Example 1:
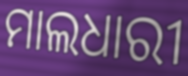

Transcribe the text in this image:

ମାଲଧାରୀ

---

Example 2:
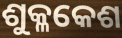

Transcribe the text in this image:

ଶୁକ୍ଳକେଶ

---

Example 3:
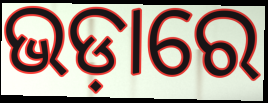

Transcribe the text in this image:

ଭଡ଼ାରେ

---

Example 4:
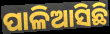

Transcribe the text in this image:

ପାଳିଆସିଛି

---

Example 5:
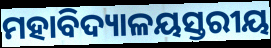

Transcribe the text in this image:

ମହାବିଦ୍ୟାଳୟସ୍ତରୀୟ